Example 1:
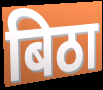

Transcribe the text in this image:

बिठा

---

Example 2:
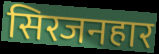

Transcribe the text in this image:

सिरजनहार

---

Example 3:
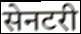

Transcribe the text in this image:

सेनटरी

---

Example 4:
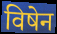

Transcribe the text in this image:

विषेन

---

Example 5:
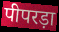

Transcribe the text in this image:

पीपरड़ा